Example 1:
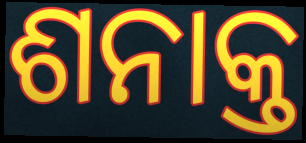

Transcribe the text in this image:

ଶନାକ୍ତ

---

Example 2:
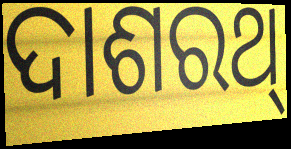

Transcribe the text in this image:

ଦାଶରଥ୍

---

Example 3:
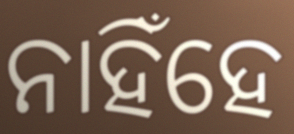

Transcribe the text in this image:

ନାହିଁହେ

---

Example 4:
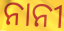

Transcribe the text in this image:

ନାନୀ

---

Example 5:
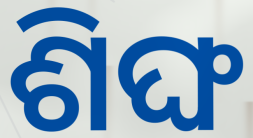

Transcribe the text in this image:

ଶିଙ୍ଘ